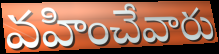
వహించేవారు